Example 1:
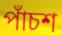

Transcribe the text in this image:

পাঁচশ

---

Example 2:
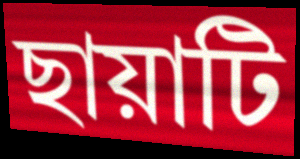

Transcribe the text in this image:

ছায়াটি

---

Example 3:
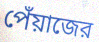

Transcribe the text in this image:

পেঁয়াজের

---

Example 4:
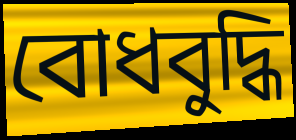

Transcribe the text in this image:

বোধবুদ্ধি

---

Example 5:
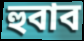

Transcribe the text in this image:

হুবাব